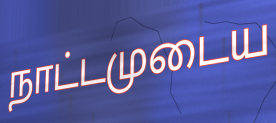
நாட்டமுடைய